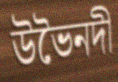
উভৈনদী